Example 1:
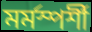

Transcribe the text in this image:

মৰ্মস্পৰ্শী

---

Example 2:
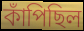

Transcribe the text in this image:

কাঁপিছিল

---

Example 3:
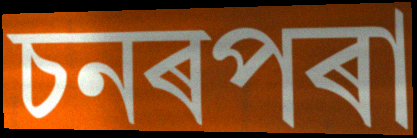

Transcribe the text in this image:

চনৰপৰা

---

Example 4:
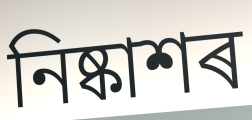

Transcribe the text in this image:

নিষ্কাশৰ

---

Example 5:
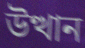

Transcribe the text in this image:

উত্থান